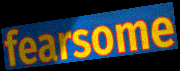
fearsome